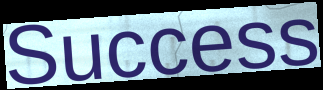
Success